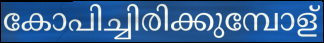
കോപിച്ചിരിക്കുമ്പോള്